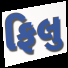
ફિલુ